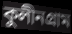
কুলীনগ্রাম